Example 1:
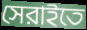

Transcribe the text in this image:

সেরাইতে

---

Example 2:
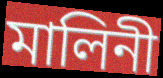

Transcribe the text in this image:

মালিনী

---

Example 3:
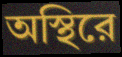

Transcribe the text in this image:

অস্থিরে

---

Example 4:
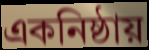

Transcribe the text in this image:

একনিষ্ঠায়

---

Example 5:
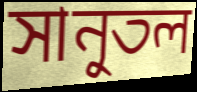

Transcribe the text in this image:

সানুতল